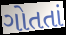
ગોતતાં